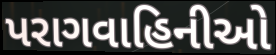
પરાગવાહિનીઓ